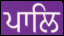
ਪਾਲਿ